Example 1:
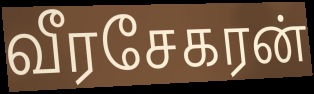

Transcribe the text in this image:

வீரசேகரன்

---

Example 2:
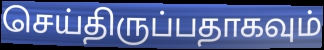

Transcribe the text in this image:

செய்திருப்பதாகவும்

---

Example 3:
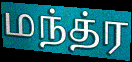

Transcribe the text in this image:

மந்த்ர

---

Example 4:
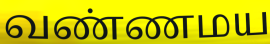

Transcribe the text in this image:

வண்ணமய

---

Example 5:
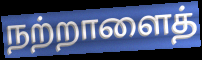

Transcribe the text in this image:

நற்றாளைத்